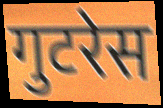
गुटरेस